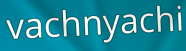
vachnyachi